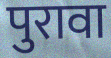
पुरावा